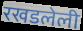
रखडलेली